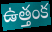
ఉత్తంక